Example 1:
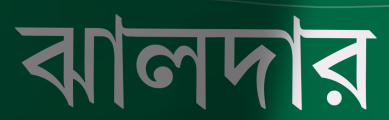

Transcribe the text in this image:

ঝালদার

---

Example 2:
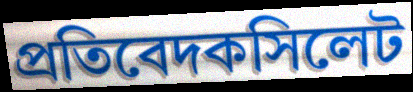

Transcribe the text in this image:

প্রতিবেদকসিলেট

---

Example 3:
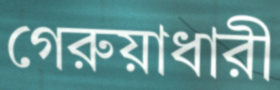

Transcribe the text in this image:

গেরুয়াধারী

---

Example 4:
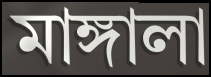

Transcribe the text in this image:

মাঙ্গালা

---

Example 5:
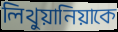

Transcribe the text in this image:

লিথুয়ানিয়াকে